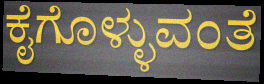
ಕೈಗೊಳ್ಳುವಂತೆ